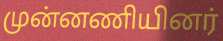
முன்னணியினர்